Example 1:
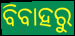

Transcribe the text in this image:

ବିବାହରୁ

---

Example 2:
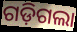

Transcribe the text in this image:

ଗଡ଼ିଗଲା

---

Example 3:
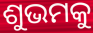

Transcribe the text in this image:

ଶୁଭମକୁ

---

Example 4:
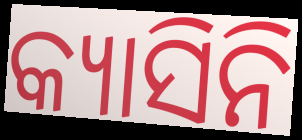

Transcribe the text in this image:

କ୍ୟାସିନି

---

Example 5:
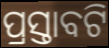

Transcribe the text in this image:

ପ୍ରସ୍ତାବଟି